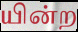
யின்ற